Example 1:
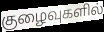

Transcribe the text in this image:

குழைவுகளில்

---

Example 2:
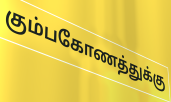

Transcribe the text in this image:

கும்பகோணத்துக்கு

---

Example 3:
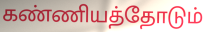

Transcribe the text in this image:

கண்ணியத்தோடும்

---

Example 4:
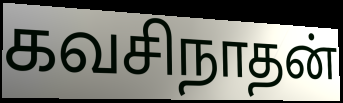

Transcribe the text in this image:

கவசிநாதன்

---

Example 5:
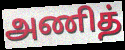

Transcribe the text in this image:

அணித்